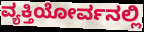
ವ್ಯಕ್ತಿಯೋರ್ವನಲ್ಲಿ